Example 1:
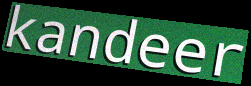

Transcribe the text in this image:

kandeer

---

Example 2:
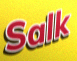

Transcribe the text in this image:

Salk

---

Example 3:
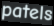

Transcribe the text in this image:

patels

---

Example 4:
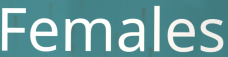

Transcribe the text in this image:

Females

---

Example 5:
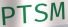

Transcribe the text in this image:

PTSM